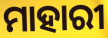
ମାହାରୀ